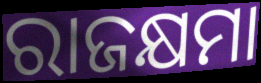
ରାଜକ୍ଷମା